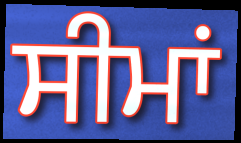
ਸੀਮਾਂ